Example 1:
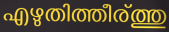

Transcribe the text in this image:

എഴുതിത്തീര്ത്തു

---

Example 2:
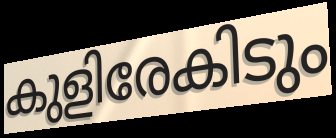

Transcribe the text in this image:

കുളിരേകിടും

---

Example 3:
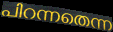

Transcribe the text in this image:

പിറന്നതെന്ന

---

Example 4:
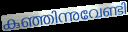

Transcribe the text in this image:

കുഞ്ഞിന്നുവേണ്ടി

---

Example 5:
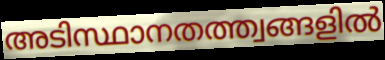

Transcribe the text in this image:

അടിസ്ഥാനതത്ത്വങ്ങളിൽ